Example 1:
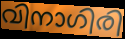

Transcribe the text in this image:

വിനാഗിരി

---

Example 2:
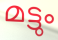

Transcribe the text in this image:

മട്ടും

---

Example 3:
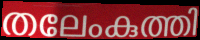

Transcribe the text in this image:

തലേംകുത്തി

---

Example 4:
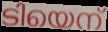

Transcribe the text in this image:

ടിയെന്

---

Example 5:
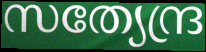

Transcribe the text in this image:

സത്യേന്ദ്ര